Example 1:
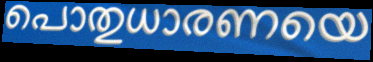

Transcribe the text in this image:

പൊതുധാരണയെ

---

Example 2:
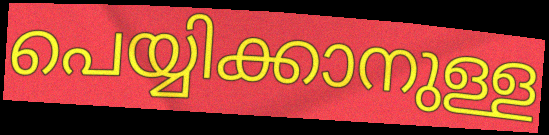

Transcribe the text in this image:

പെയ്യിക്കാനുള്ള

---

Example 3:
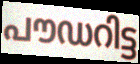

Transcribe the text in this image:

പൗഡറിട്ട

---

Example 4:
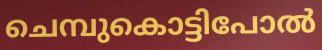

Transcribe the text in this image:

ചെമ്പുകൊട്ടിപോൽ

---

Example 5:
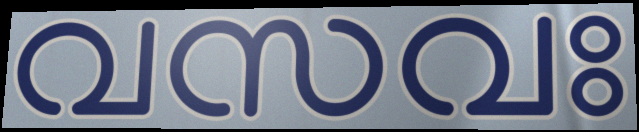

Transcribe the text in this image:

വസവഃ